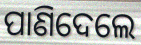
ପାଣିଦେଲେ